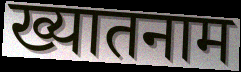
ख्यातनाम